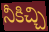
నీకిచ్చి